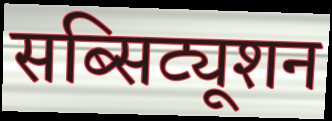
सब्सिट्यूशन